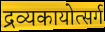
द्रव्यकायोत्सर्ग